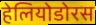
हेलियोडोरस